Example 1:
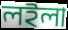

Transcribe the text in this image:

লইলা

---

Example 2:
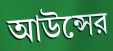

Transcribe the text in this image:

আউন্সের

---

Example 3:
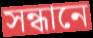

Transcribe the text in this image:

সন্ধানে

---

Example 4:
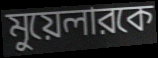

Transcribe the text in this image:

মুয়েলারকে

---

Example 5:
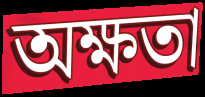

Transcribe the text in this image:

অক্ষতা